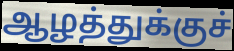
ஆழத்துக்குச்